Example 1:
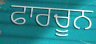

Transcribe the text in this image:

ਫਾਰਚੂਨ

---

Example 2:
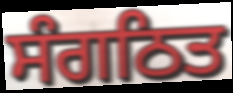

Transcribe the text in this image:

ਸੰਗਠਿਤ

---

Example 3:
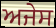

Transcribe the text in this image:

ਅਜੇਸ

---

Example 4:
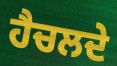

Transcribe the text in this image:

ਹੈਚਲਦੇ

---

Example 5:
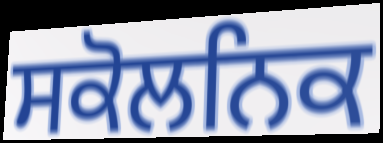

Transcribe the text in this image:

ਸਕੋਲਨਿਕ